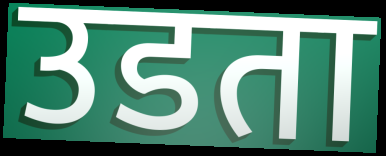
उडता